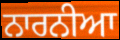
ਨਾਰਨੀਆ